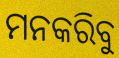
ମନକରିବୁ